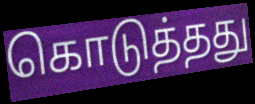
கொடுத்தது